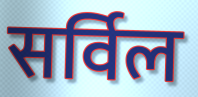
सर्विल